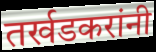
तर्खडकरांनी